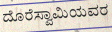
ದೊರೆಸ್ವಾಮಿಯವರ